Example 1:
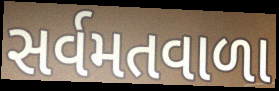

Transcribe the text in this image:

સર્વમતવાળા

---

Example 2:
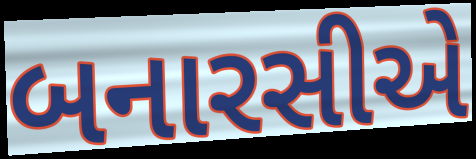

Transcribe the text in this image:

બનારસીએ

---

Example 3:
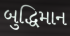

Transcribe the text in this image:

બુદ્ધિમાન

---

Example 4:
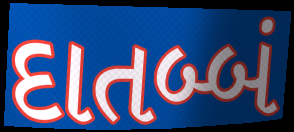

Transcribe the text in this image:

દાતબ્બં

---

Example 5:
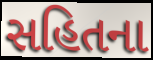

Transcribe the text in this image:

સહિતના